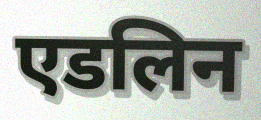
एडलिन